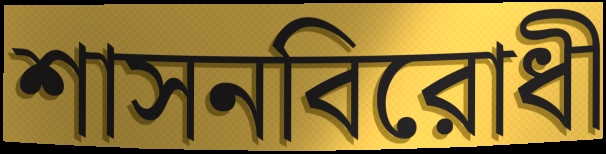
শাসনবিরোধী